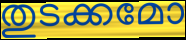
തുടക്കമോ